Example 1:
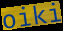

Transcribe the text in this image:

oiki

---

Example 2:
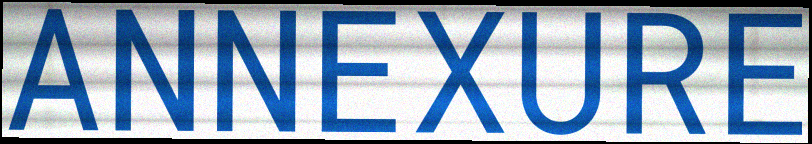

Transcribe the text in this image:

ANNEXURE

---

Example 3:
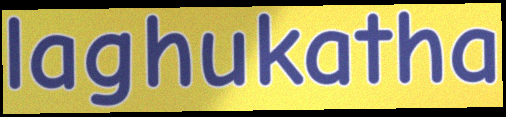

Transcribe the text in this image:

laghukatha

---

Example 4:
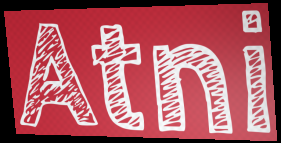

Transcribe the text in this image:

Atni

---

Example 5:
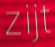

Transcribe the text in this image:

zijt